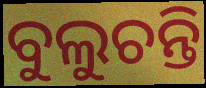
ବୁଲୁଚନ୍ତି